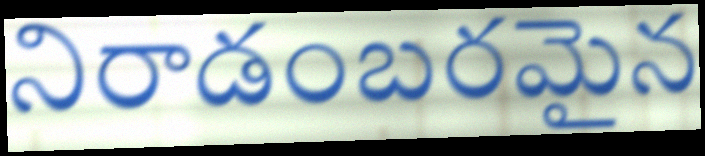
నిరాడంబరమైన